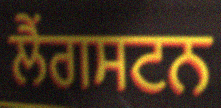
ਲੈਂਗਸਟਨ